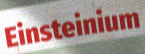
Einsteinium